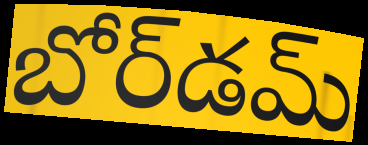
బోర్‌డమ్